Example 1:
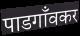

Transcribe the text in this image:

पाडगाँवकर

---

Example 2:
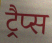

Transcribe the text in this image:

ट्रैप्स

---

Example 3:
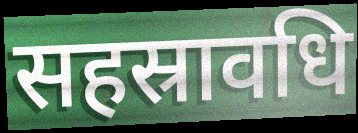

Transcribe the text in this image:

सहस्रावधि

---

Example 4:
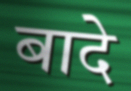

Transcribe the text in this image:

बादे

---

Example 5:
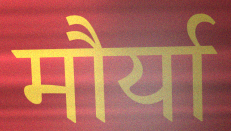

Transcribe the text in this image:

मौर्या